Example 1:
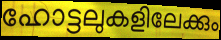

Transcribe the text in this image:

ഹോട്ടലുകളിലേക്കും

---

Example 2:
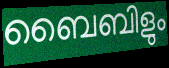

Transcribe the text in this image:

ബൈബിളും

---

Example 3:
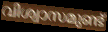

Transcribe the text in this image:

വിശ്വാസമുണ്ട്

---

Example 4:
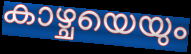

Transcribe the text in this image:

കാഴ്ചയെയും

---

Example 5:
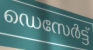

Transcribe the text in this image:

ഡെസേർട്ട്